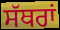
ਸੱਥਰਾਂ